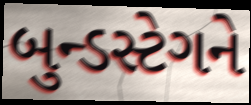
બુન્ડસ્ટેગને